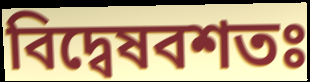
বিদ্বেষবশতঃ